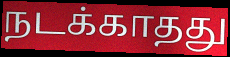
நடக்காதது